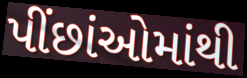
પીંછાંઓમાંથી